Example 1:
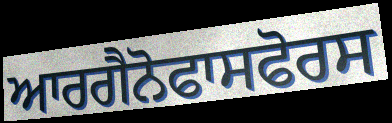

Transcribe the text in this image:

ਆਰਗੈਨੋਫਾਸਫੋਰਸ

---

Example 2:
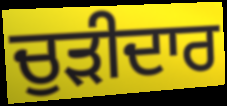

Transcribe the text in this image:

ਚੁੜੀਦਾਰ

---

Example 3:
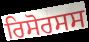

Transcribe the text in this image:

ਰਿਸੋਰਸਸ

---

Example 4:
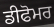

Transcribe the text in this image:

ਡੀਫੋਮਰ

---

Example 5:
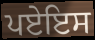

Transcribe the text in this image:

ਪਏਇਸ